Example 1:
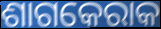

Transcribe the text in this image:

ଶାଗକେରାକ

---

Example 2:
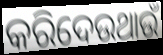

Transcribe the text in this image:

କରିଦେଉଥାଉଁ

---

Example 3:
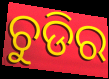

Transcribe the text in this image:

ଚୁଡିର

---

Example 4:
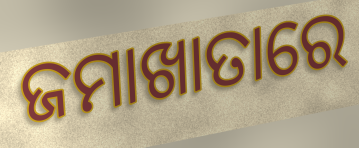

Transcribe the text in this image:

ଜମାଖାତାରେ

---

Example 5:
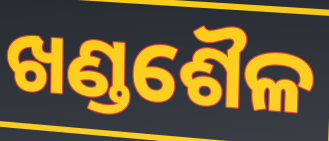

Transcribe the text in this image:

ଖଣ୍ଡଶୈଳ